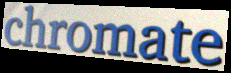
chromate